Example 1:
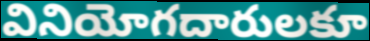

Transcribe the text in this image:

వినియోగదారులకూ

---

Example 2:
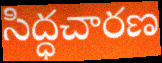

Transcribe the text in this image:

సిద్ధచారణ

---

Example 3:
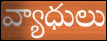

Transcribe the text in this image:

వ్యాధులు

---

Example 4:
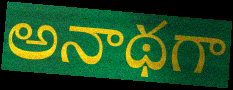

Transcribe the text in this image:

అనాథగా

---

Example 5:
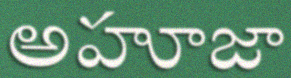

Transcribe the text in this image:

అహూజా